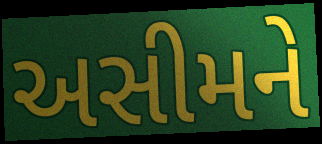
અસીમને